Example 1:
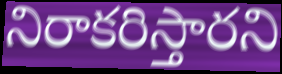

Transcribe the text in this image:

నిరాకరిస్తారని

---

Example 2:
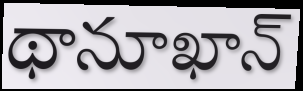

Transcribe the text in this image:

థానూఖాన్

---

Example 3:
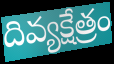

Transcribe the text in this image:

దివ్యక్షేత్రం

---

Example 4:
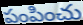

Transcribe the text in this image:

పంపించు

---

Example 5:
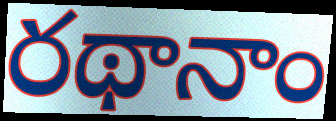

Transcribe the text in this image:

రథానాం